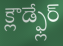
క్లౌడ్ఫ్లేర్